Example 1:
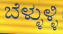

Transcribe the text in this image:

ಬೆಳ್ಳುಳ್ಳಿ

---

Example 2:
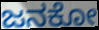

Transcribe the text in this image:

ಜನಕೋ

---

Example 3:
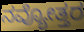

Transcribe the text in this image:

ನವ್ಯೋತ್ತರ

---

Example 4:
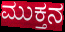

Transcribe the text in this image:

ಮುಕ್ತನ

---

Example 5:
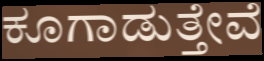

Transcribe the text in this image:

ಕೂಗಾಡುತ್ತೇವೆ